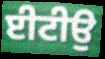
ਈਟੀਉ